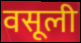
वसूली